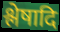
श्लेषादि